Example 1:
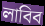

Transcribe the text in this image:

লাবিব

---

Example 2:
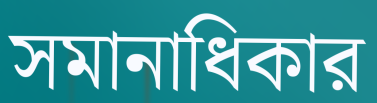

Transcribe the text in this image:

সমানাধিকার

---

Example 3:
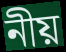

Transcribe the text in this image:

নীয়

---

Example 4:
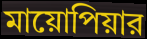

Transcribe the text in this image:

মায়োপিয়ার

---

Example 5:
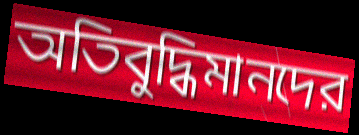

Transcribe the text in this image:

অতিবুদ্ধিমানদের